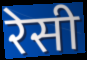
रेसी